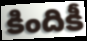
కిందికీ